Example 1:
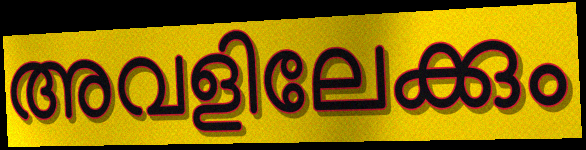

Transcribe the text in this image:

അവളിലേക്കും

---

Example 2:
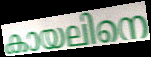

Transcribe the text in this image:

കായലിനെ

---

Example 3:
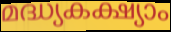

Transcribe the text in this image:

മദ്ധ്യകക്ഷ്യാം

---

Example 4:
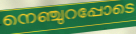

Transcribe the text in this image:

നെഞ്ചുറപ്പോടെ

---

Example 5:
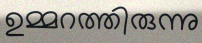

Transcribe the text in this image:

ഉമ്മറത്തിരുന്നു